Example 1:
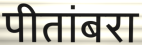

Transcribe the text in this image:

पीतांबरा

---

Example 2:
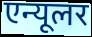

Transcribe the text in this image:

एन्यूलर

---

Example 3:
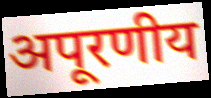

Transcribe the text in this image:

अपूरणीय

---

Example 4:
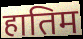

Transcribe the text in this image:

हातिम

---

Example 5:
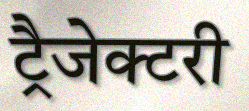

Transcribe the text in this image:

ट्रैजेक्‍टरी